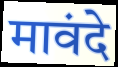
मावंदे